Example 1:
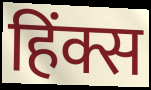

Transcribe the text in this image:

हिंक्स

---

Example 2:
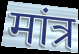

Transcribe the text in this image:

मांत्र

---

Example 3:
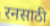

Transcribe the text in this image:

रनसाठी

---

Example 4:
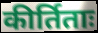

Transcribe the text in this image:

कीर्तिताः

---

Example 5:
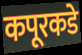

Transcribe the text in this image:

कपूरकडे